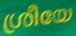
ശ്രീയേ